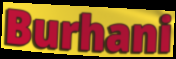
Burhani